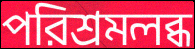
পরিশ্রমলব্ধ